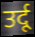
उर्दू